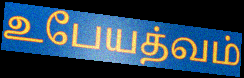
உபேயத்வம்